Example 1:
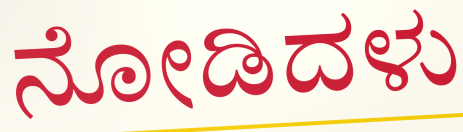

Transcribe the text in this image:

ನೋಡಿದಳು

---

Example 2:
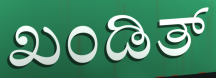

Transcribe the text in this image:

ಖಂಡಿತ್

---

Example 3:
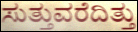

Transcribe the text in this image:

ಸುತ್ತುವರೆದಿತ್ತು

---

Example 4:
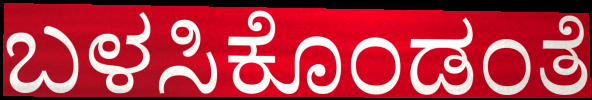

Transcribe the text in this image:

ಬಳಸಿಕೊಂಡಂತೆ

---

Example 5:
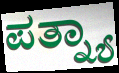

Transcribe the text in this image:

ಪತ್ನ್ಯಾ